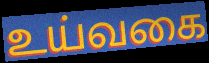
உய்வகை